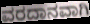
ವರದಾನವಾಗಿ